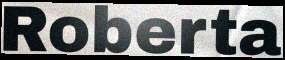
Roberta